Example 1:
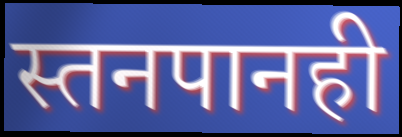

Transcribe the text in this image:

स्तनपानही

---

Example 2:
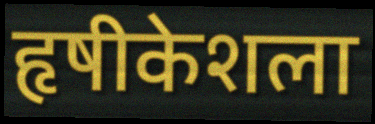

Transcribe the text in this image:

हृषीकेशला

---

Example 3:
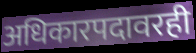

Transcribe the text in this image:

अधिकारपदावरही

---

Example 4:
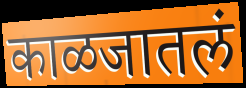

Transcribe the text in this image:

काळजातलं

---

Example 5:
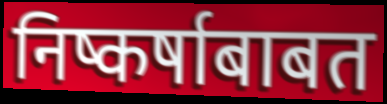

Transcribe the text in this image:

निष्कर्षाबाबत